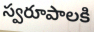
స్వరూపాలకి